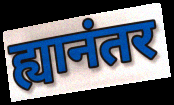
ह्यानंतर